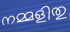
നമ്മളിതു